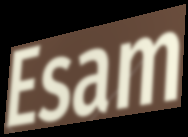
Esam